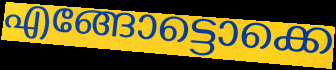
എങ്ങോട്ടൊക്കെ